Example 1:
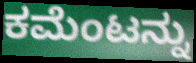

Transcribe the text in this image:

ಕಮೆಂಟನ್ನು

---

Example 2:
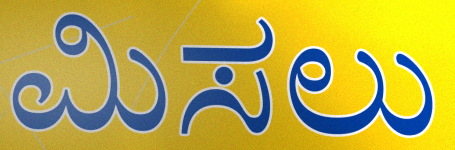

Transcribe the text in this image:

ಮಿಸಲು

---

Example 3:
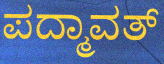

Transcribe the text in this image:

ಪದ್ಮಾವತ್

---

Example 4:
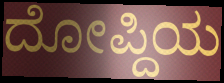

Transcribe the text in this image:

ದೋಪ್ದಿಯ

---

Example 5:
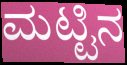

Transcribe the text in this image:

ಮಟ್ಟಿನ